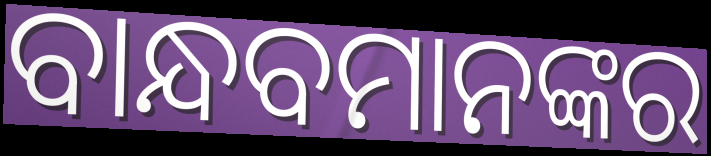
ବାନ୍ଧବମାନଙ୍କର